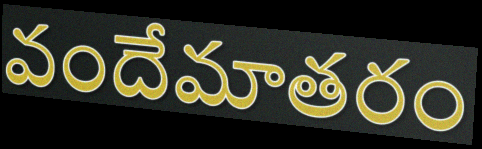
వందేమాతరం